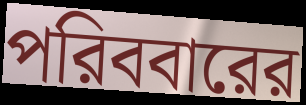
পরিববারের